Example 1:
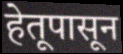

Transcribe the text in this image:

हेतूपासून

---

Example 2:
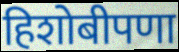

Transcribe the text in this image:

हिशोबीपणा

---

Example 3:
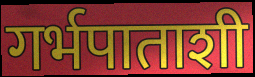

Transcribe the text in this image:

गर्भपाताशी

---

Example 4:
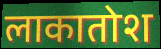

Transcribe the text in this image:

लाकातोश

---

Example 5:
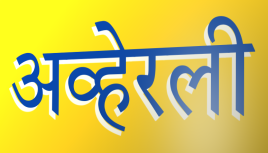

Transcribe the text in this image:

अव्हेरली